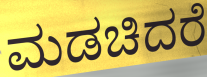
ಮಡಚಿದರೆ